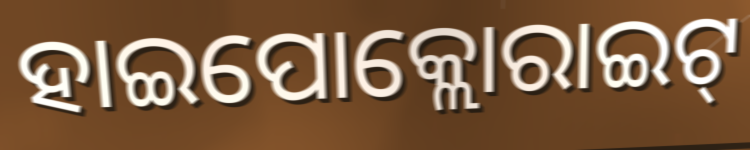
ହାଇପୋକ୍ଲୋରାଇଟ୍